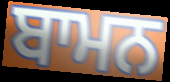
ਬਾਮਨ